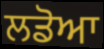
ਲਡੋਆ